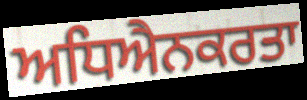
ਅਧਿਐਨਕਰਤਾ